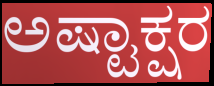
ಅಷ್ಟಾಕ್ಷರ